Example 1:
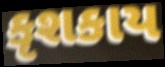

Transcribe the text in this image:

કૃશકાય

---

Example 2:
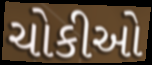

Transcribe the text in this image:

ચોકીઓ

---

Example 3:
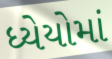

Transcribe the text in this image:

ધ્યેયોમાં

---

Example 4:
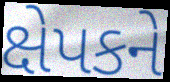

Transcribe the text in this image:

ક્ષેપકને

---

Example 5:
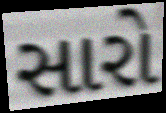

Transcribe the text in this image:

સારો